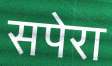
सपेरा